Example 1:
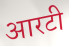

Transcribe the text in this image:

आरटी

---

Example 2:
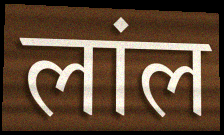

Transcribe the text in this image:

लांल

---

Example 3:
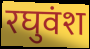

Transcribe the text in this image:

रघुवंश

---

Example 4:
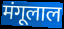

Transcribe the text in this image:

मंगूलाल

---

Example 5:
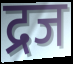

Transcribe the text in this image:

द्रज